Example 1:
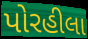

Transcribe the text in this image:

પોરહીલા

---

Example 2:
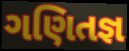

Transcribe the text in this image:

ગણિતજ્ઞ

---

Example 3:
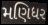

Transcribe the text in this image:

મણિધર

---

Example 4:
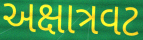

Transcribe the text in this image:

અક્ષાત્રવટ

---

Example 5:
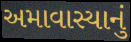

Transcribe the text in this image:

અમાવાસ્યાનું